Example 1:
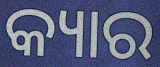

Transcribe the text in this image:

କ୍ୟାର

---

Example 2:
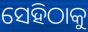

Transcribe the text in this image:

ସେହିଠାକୁ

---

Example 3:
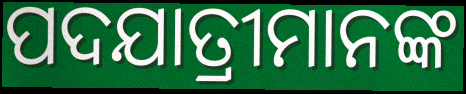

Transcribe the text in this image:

ପଦଯାତ୍ରୀମାନଙ୍କ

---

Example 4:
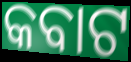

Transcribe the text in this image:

କବାଟ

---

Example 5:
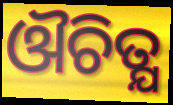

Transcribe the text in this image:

ଔଚିତ୍ଯ